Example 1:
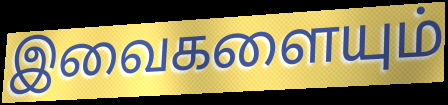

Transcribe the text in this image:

இவைகளையும்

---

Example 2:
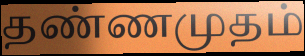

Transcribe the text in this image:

தண்ணமுதம்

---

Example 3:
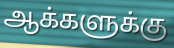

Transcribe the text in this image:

ஆக்களுக்கு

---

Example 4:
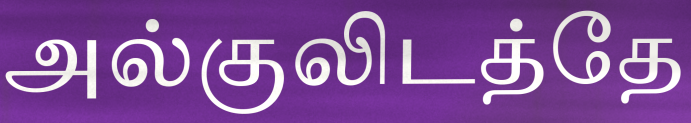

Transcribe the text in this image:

அல்குலிடத்தே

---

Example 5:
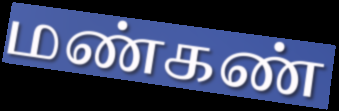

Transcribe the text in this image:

மண்கண்